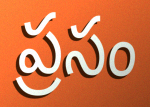
ప్రసం